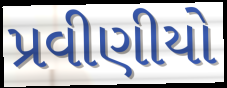
પ્રવીણીયો